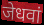
जेधवां